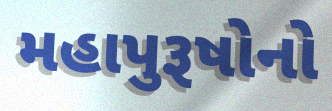
મહાપુરૂષોનો